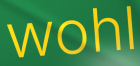
wohl